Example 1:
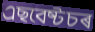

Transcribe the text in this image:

এছবেষ্টচৰ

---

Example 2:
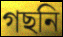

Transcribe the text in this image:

গছনি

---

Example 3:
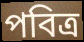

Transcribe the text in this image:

পবিত্ৰ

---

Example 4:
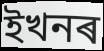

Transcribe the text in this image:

ইখনৰ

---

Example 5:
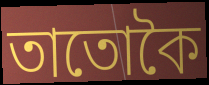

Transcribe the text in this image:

তাতোকৈ